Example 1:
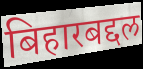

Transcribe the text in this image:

बिहारबद्दल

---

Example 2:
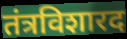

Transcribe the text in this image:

तंत्रविशारद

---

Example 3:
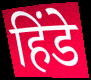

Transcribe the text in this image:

हिंडे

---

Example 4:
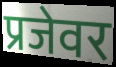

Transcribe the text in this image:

प्रजेवर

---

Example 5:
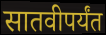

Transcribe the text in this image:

सातवीपर्यंत